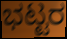
ಭಟ್ಟರ